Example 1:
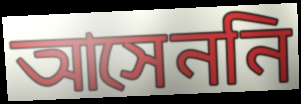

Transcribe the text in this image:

আসেননি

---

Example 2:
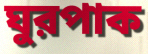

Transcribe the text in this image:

ঘুরপাক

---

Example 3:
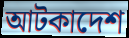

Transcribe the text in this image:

আটকাদেশ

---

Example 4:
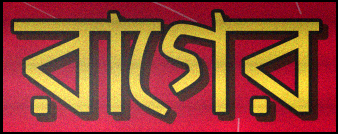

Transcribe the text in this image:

রাগের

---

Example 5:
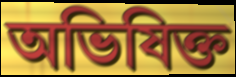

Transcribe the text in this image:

অভিষিক্ত